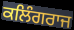
ਕਲਿੰਗਰਾਜ